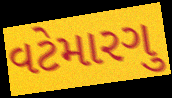
વટેમારગુ